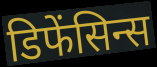
डिफेंसिन्स